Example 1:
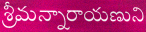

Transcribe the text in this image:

శ్రీమన్నారాయణుని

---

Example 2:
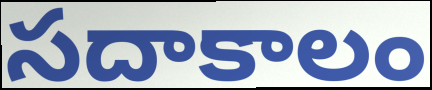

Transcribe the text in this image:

సదాకాలం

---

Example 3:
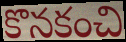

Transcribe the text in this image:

కొనకంచి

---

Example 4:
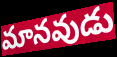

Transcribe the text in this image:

మానవుడు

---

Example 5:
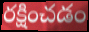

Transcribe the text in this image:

రక్షించడం